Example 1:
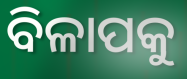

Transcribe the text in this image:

ବିଳାପକୁ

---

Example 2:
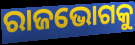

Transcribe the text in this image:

ରାଜଭୋଗକୁ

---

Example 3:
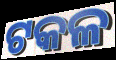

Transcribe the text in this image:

ଟକଳ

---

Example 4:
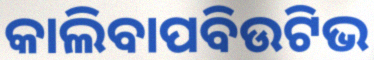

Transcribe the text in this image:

କାଲିବାପବିଉଟିଭ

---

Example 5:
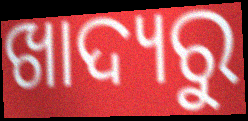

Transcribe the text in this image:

ଖାଦ୍ୟରୁ